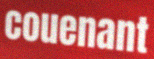
couenant